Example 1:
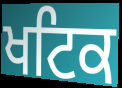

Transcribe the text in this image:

ਖਟਿਕ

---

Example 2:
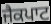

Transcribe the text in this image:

ਜੈਕਪਾਟ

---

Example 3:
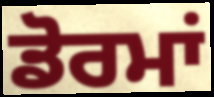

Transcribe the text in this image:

ਡੋਰਮਾਂ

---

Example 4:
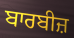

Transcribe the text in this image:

ਬਾਰਬੀਜ਼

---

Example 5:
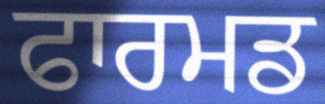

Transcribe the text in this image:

ਫਾਰਮਡ